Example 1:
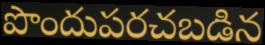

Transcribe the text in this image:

పొందుపరచబడిన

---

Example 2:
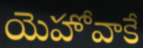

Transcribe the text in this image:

యెహోవాకే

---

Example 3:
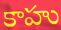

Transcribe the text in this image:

కాహు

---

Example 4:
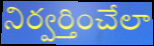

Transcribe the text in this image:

నిర్వర్తించేలా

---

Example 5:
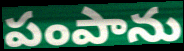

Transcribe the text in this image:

పంపాను